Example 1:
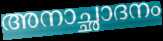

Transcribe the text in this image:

അനാച്ഛാദനം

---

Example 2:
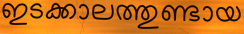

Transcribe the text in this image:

ഇടക്കാലത്തുണ്ടായ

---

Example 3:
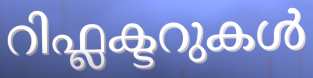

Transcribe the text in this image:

റിഫ്ലക്ടറുകൾ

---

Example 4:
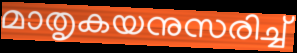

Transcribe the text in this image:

മാതൃകയനുസരിച്ച്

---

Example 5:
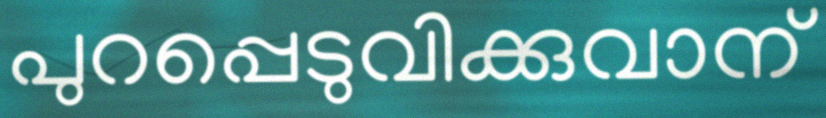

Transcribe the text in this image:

പുറപ്പെടുവിക്കുവാന്